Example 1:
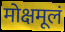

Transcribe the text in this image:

मोक्षमूलं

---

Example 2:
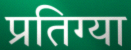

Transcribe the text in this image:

प्रतिग्या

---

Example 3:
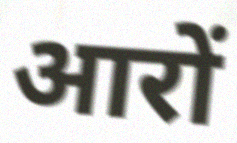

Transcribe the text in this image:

आरों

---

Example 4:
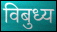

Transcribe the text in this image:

विबुध्य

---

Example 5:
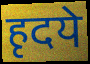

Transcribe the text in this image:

हृदये